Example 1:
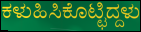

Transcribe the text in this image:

ಕಳುಹಿಸಿಕೊಟ್ಟಿದ್ದಳು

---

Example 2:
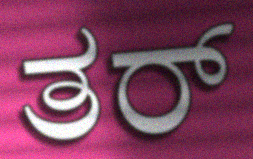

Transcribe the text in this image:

ತರ್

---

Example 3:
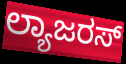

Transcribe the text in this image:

ಲ್ಯಾಜರಸ್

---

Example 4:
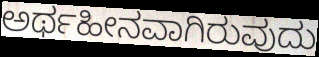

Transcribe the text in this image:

ಅರ್ಥಹೀನವಾಗಿರುವುದು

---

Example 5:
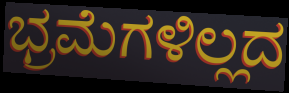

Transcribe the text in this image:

ಭ್ರಮೆಗಳಿಲ್ಲದ